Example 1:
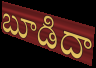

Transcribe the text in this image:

బూడిదా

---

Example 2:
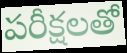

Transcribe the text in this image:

పరీక్షలతో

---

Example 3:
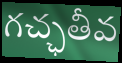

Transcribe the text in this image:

గచ్ఛతీవ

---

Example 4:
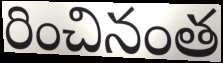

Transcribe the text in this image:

రించినంత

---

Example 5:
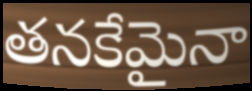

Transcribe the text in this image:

తనకేమైనా